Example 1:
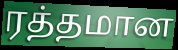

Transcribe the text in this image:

ரத்தமான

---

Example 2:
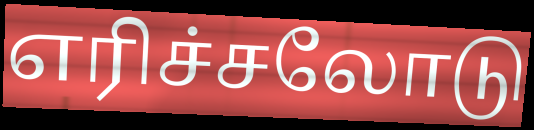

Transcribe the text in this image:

எரிச்சலோடு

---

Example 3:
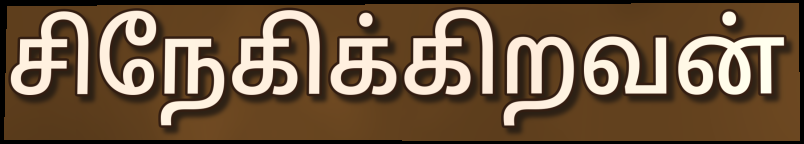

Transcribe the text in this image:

சிநேகிக்கிறவன்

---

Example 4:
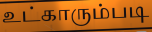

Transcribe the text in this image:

உட்காரும்படி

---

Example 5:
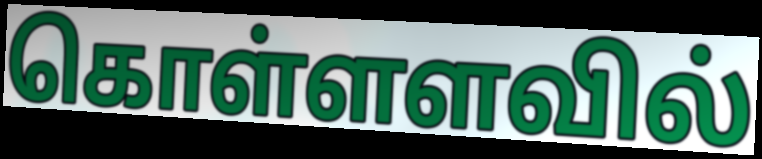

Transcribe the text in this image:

கொள்ளளவில்